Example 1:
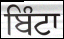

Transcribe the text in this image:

ਬਿੰਟਾ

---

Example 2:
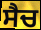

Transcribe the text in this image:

ਸੈਚ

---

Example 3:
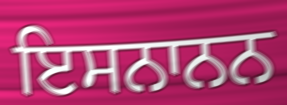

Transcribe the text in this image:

ਇਸਨਾਨਨ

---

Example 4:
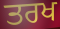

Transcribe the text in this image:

ਤਰਖ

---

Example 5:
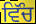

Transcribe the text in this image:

ਵਿੱੰਚ